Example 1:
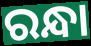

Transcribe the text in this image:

ରନ୍ଧା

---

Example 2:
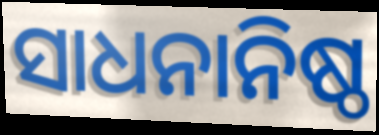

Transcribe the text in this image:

ସାଧନାନିଷ୍ଠ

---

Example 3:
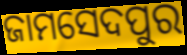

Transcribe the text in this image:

ଜାମସେଦପୁର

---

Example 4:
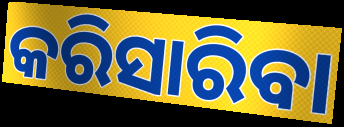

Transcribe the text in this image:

କରିସାରିବା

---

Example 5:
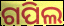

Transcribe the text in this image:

ଗପିଲ